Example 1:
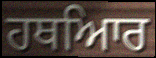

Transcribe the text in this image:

ਹਥਆਿਰ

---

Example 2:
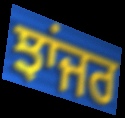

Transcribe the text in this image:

ਝਾਂਜਰ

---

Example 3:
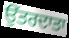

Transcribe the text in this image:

ਉੱਤਰਦਾਤਾ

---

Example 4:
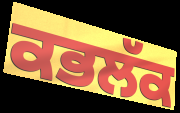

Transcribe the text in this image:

ਕਭਲੱਕ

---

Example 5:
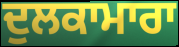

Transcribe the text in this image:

ਦੁਲਕਾਮਾਰਾ